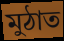
মুঠাত